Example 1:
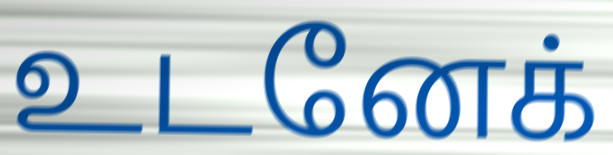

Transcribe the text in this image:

உடனேக்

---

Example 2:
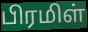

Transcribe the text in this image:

பிரமிள்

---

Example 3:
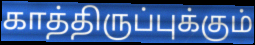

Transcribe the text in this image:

காத்திருப்புக்கும்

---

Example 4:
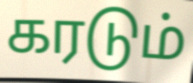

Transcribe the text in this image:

கரடும்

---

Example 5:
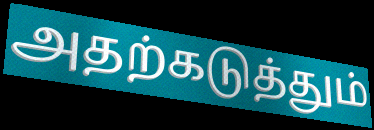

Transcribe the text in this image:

அதற்கடுத்தும்